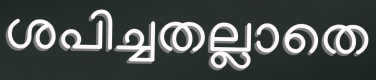
ശപിച്ചതല്ലാതെ